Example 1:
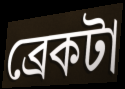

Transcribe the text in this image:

ব্রেকটা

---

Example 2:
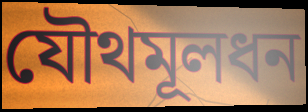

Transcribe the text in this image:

যৌথমূলধন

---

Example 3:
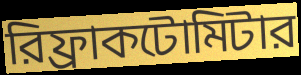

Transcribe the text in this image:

রিফ্রাকটোমিটার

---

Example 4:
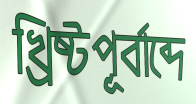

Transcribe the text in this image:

খ্রিষ্টপূর্বাব্দে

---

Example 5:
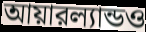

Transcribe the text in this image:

আয়ারল্যান্ডও